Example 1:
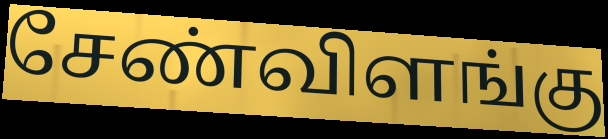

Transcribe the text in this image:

சேண்விளங்கு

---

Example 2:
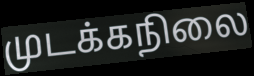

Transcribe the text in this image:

முடக்கநிலை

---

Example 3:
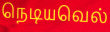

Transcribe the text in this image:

நெடியவெல்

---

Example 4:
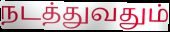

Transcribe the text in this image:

நடத்துவதும்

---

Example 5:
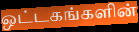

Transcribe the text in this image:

ஒட்டகங்களின்